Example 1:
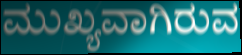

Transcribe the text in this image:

ಮುಖ್ಯವಾಗಿರುವ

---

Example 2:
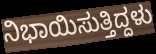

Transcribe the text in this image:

ನಿಭಾಯಿಸುತ್ತಿದ್ದಳು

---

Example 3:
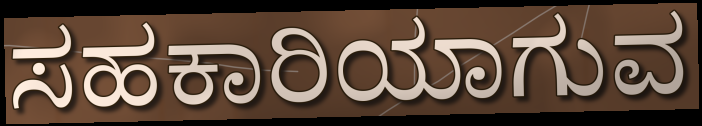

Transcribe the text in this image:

ಸಹಕಾರಿಯಾಗುವ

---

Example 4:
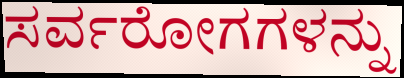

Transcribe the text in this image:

ಸರ್ವರೋಗಗಳನ್ನು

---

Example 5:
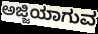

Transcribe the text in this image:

ಅಜ್ಜಿಯಾಗುವ